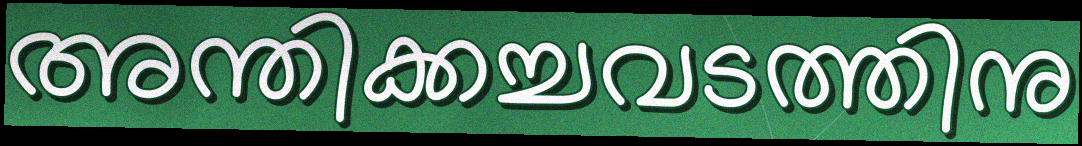
അന്തിക്കച്ചവടത്തിനു